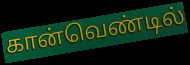
கான்வெண்டில்